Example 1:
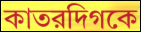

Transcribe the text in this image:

কাতরদিগকে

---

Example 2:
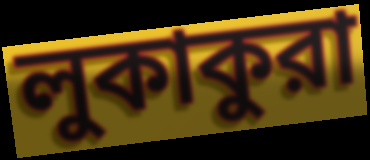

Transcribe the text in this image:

লুকাকুরা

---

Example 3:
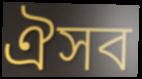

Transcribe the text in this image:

ঐসব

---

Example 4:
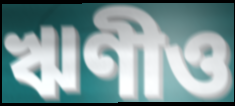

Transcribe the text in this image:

ঋণীও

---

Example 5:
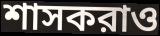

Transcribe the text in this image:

শাসকরাও